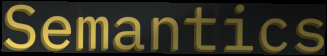
Semantics